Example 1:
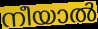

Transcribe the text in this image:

നീയാൽ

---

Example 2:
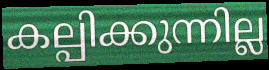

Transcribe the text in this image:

കല്പിക്കുന്നില്ല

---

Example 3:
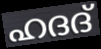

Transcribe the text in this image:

ഹദദ്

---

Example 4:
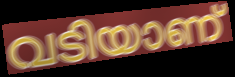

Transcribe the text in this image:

വടിയാണ്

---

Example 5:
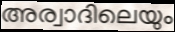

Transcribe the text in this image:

അര്വാദിലെയും